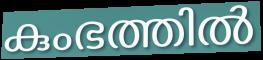
കുംഭത്തിൽ